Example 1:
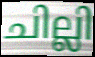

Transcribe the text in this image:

ചില്ലി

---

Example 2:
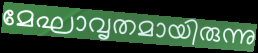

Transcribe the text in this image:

മേഘാവൃതമായിരുന്നു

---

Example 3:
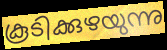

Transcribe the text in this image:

കൂടിക്കുഴയുന്നു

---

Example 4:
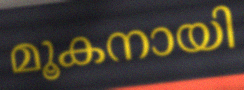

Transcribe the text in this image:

മൂകനായി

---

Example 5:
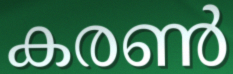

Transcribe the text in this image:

കരൺ